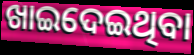
ଖାଇଦେଇଥିବା